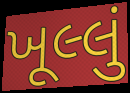
ખૂલ્લું